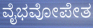
ವೈಭವೋಪೇತ